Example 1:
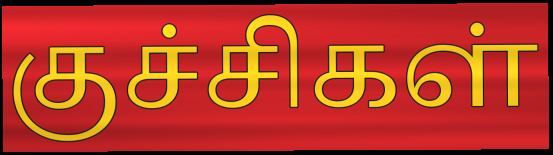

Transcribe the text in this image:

குச்சிகள்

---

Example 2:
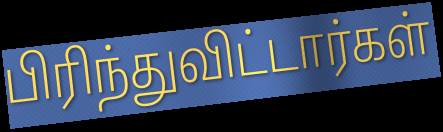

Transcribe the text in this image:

பிரிந்துவிட்டார்கள்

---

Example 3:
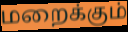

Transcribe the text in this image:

மறைக்கும்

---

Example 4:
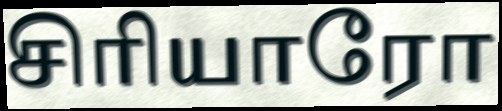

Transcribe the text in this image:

சிரியாரோ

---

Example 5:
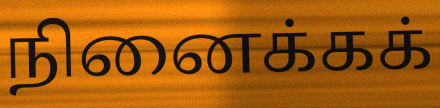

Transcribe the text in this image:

நினைக்கக்